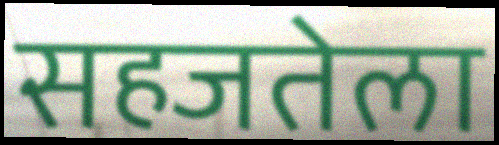
सहजतेला